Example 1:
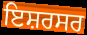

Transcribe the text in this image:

ਇਸ਼ਰਸਰ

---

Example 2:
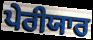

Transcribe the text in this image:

ਪੇਰੀਯਾਰ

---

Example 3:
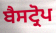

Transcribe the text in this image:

ਬੈਸਟ੍ਰੋਪ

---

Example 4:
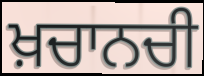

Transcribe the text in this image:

ਖ਼ਚਾਨਚੀ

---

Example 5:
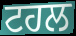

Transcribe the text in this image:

ਟਹਲ